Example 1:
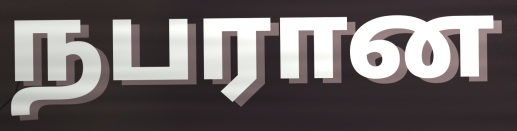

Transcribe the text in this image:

நபரான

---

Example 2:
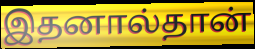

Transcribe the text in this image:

இதனால்தான்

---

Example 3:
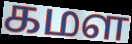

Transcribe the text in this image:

கமள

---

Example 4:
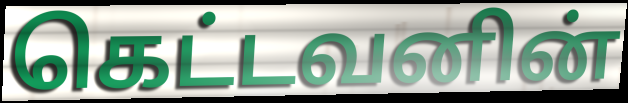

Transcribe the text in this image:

கெட்டவனின்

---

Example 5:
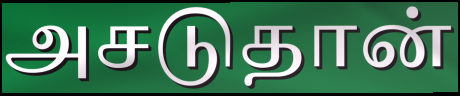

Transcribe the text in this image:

அசடுதான்